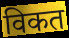
विकत